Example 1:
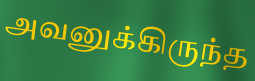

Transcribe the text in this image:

அவனுக்கிருந்த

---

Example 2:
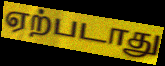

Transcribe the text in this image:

ஏற்படாது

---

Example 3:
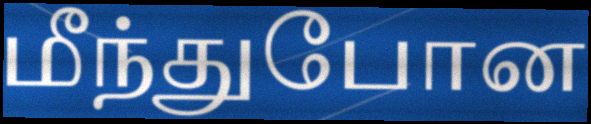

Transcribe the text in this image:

மீந்துபோன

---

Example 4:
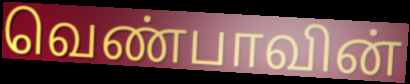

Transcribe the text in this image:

வெண்பாவின்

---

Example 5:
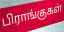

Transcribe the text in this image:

பிராங்குகள்